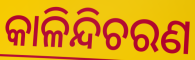
କାଳିନ୍ଦିଚରଣ